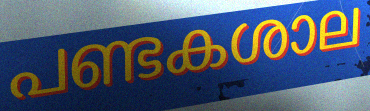
പണ്ടകശാല